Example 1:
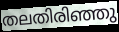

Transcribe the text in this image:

തലതിരിഞ്ഞു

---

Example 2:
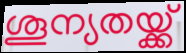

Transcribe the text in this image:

ശൂന്യതയ്ക്ക്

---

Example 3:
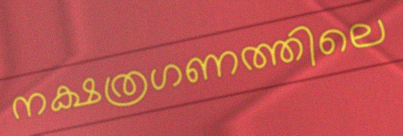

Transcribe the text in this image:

നക്ഷത്രഗണത്തിലെ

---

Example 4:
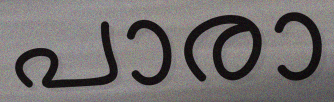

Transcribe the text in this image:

പാരാ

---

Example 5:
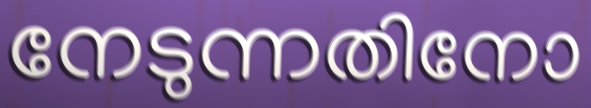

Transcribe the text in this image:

നേടുന്നതിനോ